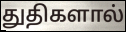
துதிகளால்